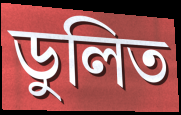
ডুলিত